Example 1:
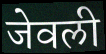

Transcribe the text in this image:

जेवली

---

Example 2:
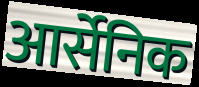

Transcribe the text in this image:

आर्सेनिक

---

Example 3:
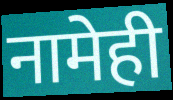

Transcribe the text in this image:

नामेही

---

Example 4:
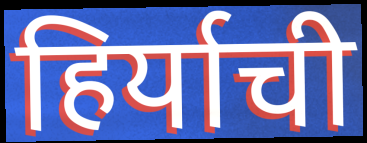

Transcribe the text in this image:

हिर्याची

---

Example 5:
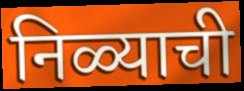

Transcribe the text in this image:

निळ्याची